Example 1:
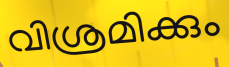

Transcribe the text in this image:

വിശ്രമിക്കും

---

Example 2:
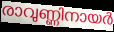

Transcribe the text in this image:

രാവുണ്ണിനായർ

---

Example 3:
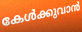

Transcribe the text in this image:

കേൾക്കുവാൻ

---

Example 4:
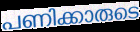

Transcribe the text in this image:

പണിക്കാരുടെ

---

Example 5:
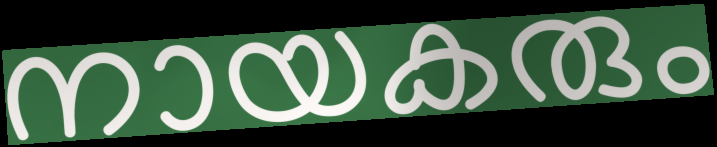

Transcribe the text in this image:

നായകരും